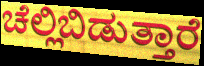
ಚೆಲ್ಲಿಬಿಡುತ್ತಾರೆ